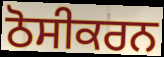
ਠੋਸੀਕਰਨ